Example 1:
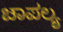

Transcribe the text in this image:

ಚಾಪಲ್ಯ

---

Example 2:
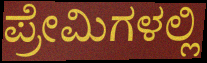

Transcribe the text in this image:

ಪ್ರೇಮಿಗಳಲ್ಲಿ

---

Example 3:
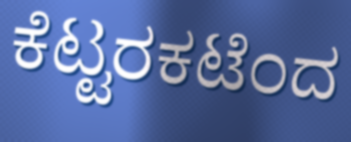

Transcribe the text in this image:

ಕೆಟ್ಟರಕಟೆಂದ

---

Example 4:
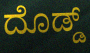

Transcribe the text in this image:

ದೊಡ್ಡ್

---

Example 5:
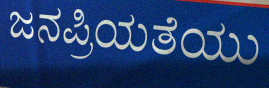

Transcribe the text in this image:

ಜನಪ್ರಿಯತೆಯು